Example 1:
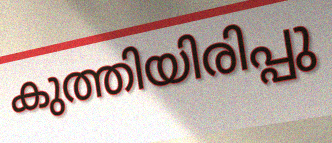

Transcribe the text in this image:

കുത്തിയിരിപ്പു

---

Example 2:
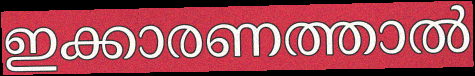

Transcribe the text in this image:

ഇക്കാരണത്താൽ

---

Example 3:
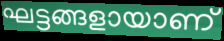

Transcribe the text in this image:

ഘട്ടങ്ങളായാണ്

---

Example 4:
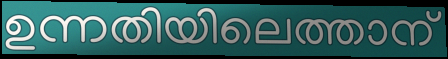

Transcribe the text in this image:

ഉന്നതിയിലെത്താന്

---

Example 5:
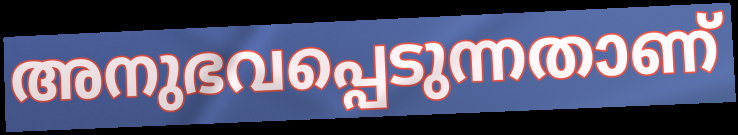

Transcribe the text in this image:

അനുഭവപ്പെടുന്നതാണ്